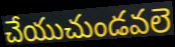
చేయుచుండవలె